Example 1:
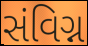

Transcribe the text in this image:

સંવિગ્ન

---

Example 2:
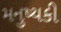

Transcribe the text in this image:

મનુષ્યકી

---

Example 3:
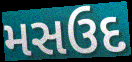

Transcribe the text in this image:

મસઉદ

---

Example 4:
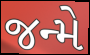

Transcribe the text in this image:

જન્મે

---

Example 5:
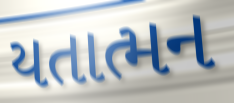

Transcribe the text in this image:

યતાત્મન